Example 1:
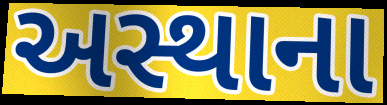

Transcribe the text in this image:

અસ્થાના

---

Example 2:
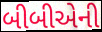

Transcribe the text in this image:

બીબીએની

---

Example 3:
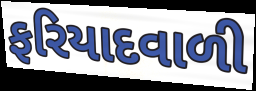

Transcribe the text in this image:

ફરિયાદવાળી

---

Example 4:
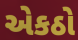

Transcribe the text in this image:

એકઠો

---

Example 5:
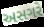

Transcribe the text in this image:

અસગરે